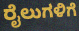
ರೈಲುಗಳಿಗೆ